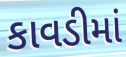
કાવડીમાં